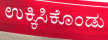
ಉಕ್ಕಿಸಿಕೊಂಡು